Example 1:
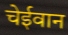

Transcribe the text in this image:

चेईवान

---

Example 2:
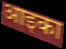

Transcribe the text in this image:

आइका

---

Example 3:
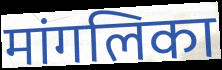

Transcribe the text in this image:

मांगलिका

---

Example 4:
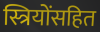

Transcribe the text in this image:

स्त्रियोंसहित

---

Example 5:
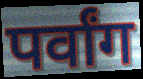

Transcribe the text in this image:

पर्वांग